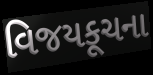
વિજયકૂચના